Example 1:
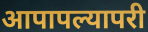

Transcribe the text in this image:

आपापल्यापरी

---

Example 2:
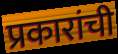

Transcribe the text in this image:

प्रकारांची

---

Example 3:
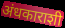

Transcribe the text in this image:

अंधकाराशी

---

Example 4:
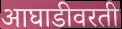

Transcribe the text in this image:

आघाडीवरती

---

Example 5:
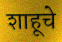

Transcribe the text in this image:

शाहूचे